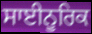
ਸਾਈਨੂਰਿਕ